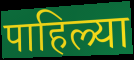
पाहिल्या